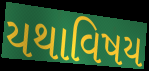
યથાવિષય